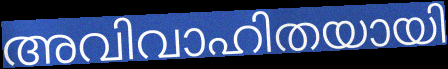
അവിവാഹിതയായി